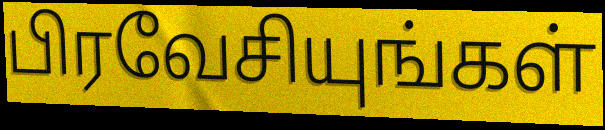
பிரவேசியுங்கள்